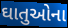
ઘાતુઓના